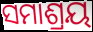
ସମାଶ୍ରୟ